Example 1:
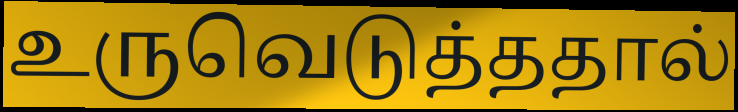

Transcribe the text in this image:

உருவெடுத்ததால்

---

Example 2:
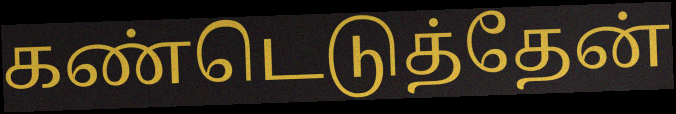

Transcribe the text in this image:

கண்டெடுத்தேன்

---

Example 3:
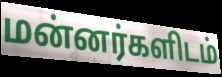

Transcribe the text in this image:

மன்னர்களிடம்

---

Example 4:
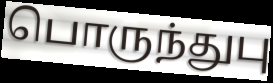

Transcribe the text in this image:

பொருந்துபு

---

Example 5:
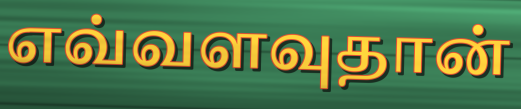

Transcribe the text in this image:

எவ்வளவுதான்